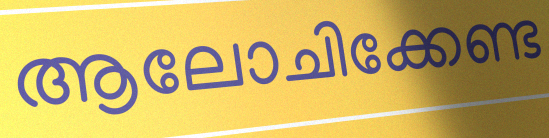
ആലോചിക്കേണ്ട